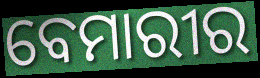
ବେମାରୀର